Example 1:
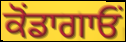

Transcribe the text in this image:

ਕੋਂਡਾਗਾਓਂ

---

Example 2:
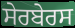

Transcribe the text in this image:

ਸੇਰਬੇਰਸ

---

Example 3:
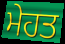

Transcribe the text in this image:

ਮੇਹਤ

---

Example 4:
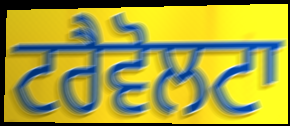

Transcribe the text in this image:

ਟਰੈਵੋਲਟਾ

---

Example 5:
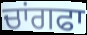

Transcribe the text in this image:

ਚਾਂਗਫਾ